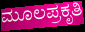
ಮೂಲಪ್ರಕೃತಿ